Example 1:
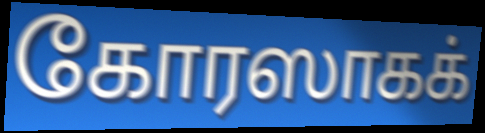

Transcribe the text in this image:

கோரஸாகக்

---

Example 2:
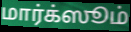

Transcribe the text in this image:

மார்க்ஸூம்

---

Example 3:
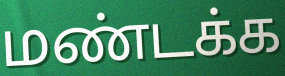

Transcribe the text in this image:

மண்டக்க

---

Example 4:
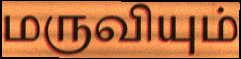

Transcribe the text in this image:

மருவியும்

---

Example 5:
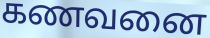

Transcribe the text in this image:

கணவனை